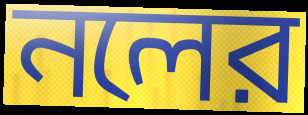
নলের